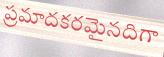
ప్రమాదకరమైనదిగా